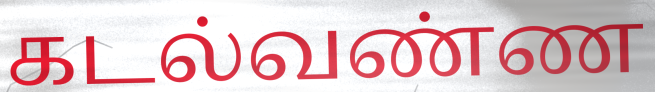
கடல்வண்ண